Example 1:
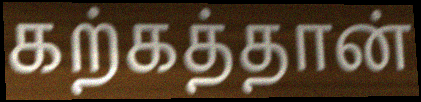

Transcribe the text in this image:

கற்கத்தான்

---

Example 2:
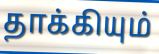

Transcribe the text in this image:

தாக்கியும்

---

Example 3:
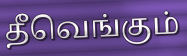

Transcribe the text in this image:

தீவெங்கும்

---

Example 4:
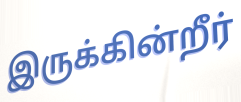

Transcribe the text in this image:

இருக்கின்றீர்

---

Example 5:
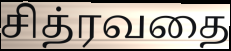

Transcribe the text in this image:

சித்ரவதை